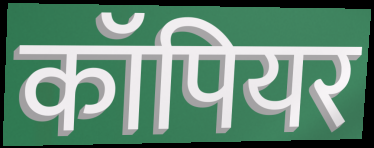
कॉपियर